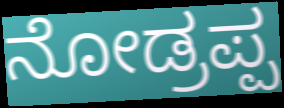
ನೋಡ್ರಪ್ಪ